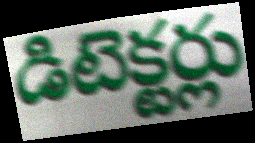
డిటెక్టర్లు